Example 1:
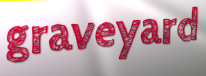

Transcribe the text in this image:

graveyard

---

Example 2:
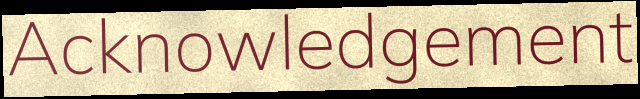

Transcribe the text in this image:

Acknowledgement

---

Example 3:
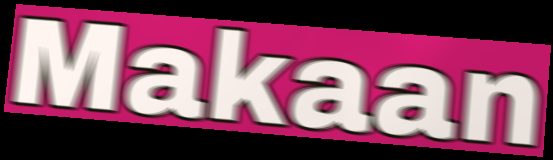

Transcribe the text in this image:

Makaan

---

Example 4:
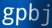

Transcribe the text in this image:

gpbj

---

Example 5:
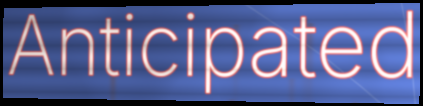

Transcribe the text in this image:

Anticipated